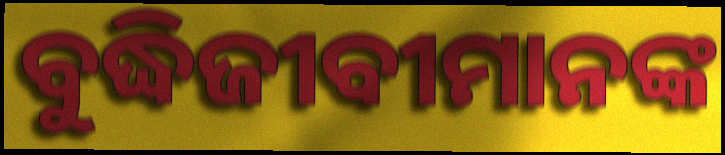
ବୁଦ୍ଧିଜୀବୀମାନଙ୍କ